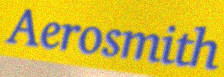
Aerosmith